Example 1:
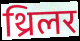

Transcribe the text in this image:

थ्रिलर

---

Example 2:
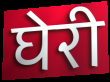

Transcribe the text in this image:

घेरी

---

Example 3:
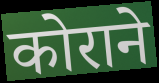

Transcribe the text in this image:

कोराने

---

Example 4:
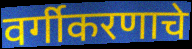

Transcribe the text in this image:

वर्गीकरणाचे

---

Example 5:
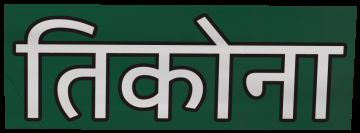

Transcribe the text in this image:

तिकोना